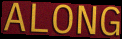
ALONG